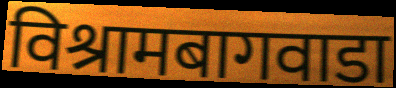
विश्रामबागवाडा